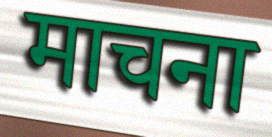
माचना